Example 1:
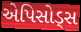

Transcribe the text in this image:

એપિસોડ્સ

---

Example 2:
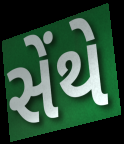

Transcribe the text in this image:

સેંથે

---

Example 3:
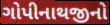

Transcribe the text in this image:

ગોપીનાથજીનો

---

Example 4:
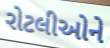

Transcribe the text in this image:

રોટલીઓને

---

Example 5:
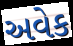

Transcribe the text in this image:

અવેક